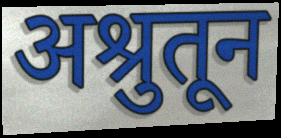
अश्रुतून